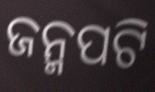
ଜନ୍ମପଟି